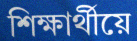
শিক্ষাৰ্থীয়ে